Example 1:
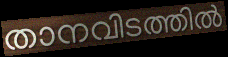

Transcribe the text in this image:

താനവിടത്തിൽ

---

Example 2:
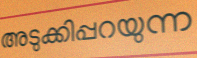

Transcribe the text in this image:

അടുക്കിപ്പറയുന്ന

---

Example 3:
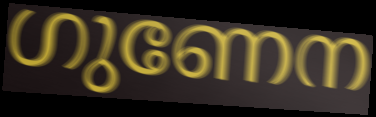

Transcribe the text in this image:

ഗുണേന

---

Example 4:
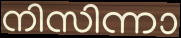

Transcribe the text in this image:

നിസിന്നാ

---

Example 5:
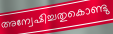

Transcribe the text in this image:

അന്വേഷിച്ചതുകൊണ്ടു